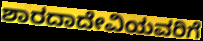
ಶಾರದಾದೇವಿಯವರಿಗೆ